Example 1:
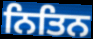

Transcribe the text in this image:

ਨਿਤਿਨ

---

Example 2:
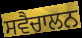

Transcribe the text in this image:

ਸਵੈਚਾਲਨ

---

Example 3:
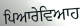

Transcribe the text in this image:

ਪਿਆਰੇਵਿਆਹ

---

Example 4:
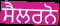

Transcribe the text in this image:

ਸੈਲਰਨੋ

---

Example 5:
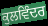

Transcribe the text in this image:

ਕੁਲਵਿੰਦਰ